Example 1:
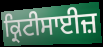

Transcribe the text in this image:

ਕ੍ਰਿਟੀਸਾਈਜ਼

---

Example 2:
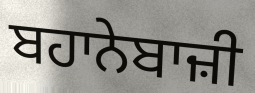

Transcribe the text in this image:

ਬਹਾਨੇਬਾਜ਼ੀ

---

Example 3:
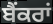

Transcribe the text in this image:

ਬੈਂਕਰਾਂ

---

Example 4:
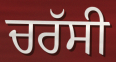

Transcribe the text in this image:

ਚਰੱਸੀ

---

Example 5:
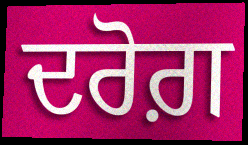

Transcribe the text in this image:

ਦਰੋਗ਼